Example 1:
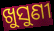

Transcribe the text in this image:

ଖୁସୁଣୀ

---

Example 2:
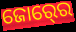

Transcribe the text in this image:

ଜୋର୍‍ରେ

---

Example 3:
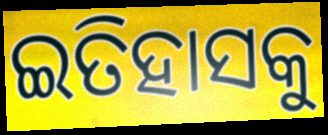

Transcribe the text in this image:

ଇତିହାସକୁ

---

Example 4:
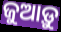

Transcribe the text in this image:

ଜୁଆଡ଼ୁ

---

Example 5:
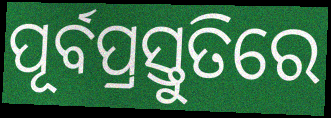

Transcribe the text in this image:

ପୂର୍ବପ୍ରସ୍ତୁତିରେ